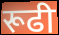
रूढी